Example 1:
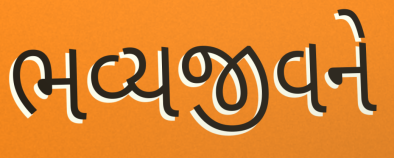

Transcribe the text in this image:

ભવ્યજીવને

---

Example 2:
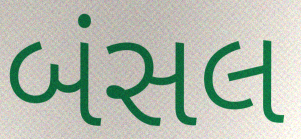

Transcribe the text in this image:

બંસલ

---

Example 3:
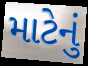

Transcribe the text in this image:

માટેનું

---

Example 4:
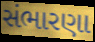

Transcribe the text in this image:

સંભારણા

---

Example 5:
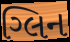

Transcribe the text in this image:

ગ્લિન